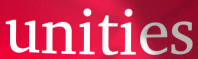
unities